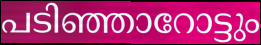
പടിഞ്ഞാറോട്ടും